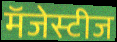
मॅजेस्टीज